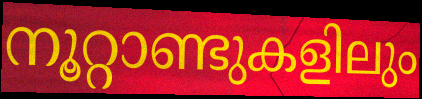
നൂറ്റാണ്ടുകളിലും